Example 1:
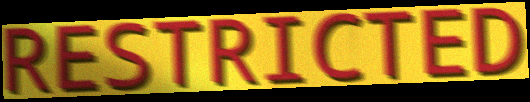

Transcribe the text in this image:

RESTRICTED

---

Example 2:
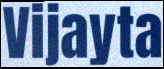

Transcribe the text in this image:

Vijayta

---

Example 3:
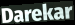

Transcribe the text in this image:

Darekar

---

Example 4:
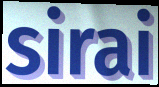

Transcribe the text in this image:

sirai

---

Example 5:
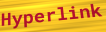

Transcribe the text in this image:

Hyperlink